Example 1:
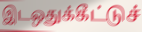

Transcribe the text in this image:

இடஒதுக்கீட்டுச்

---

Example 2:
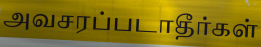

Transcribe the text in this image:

அவசரப்படாதீர்கள்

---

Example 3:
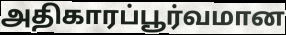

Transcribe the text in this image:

அதிகாரப்பூர்வமான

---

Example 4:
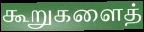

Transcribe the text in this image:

கூறுகளைத்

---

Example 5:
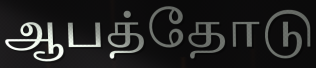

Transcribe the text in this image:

ஆபத்தோடு